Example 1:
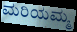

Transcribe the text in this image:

ಮರಿಯಮ್ಮ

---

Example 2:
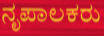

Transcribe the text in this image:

ನೃಪಾಲಕರು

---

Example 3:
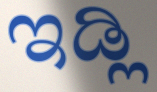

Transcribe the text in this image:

ಇಡ್ಲಿ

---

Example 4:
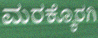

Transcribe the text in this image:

ಮರಕ್ಕೊರಗಿ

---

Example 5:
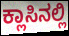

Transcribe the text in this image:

ಕ್ಲಾಸಿನಲ್ಲಿ